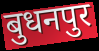
बुधनपुर